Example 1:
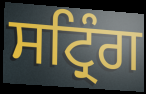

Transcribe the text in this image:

ਸਟ੍ਰਿੰਗ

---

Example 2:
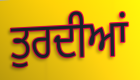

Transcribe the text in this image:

ਤੁਰਦੀਆਂ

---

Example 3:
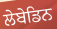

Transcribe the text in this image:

ਲੇਬੇਡਿਨ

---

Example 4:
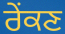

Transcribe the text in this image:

ਰੇੰਕਣ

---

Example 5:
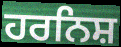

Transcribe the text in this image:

ਹਰਨਿਸ਼